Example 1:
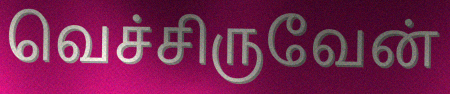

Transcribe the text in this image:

வெச்சிருவேன்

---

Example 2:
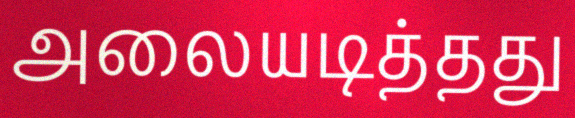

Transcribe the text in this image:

அலையடித்தது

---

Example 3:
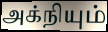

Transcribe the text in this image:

அக்நியும்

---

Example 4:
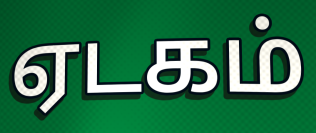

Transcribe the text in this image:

ஏடகம்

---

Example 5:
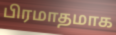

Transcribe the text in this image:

பிரமாதமாக